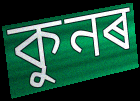
কুনৰ